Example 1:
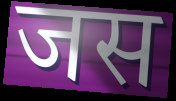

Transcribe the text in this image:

जस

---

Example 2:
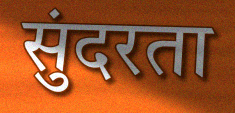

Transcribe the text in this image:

सुंदरता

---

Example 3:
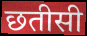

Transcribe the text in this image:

छतीसी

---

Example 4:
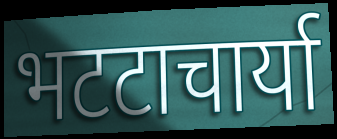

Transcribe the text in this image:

भटटाचार्या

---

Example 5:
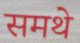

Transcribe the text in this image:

समथे